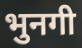
भुनगी